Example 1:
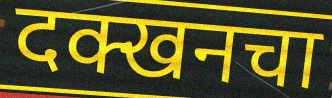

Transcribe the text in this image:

दक्खनचा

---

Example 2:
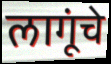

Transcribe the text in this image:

लागूंचे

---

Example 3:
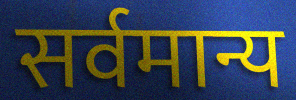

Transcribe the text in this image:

सर्वमान्य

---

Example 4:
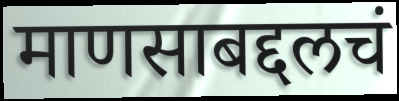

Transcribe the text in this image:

माणसाबद्दलचं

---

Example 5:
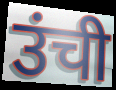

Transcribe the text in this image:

उंची